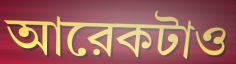
আরেকটাও